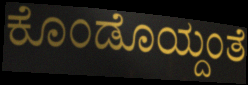
ಕೊಂಡೊಯ್ದಂತೆ